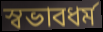
স্বভাবধর্ম